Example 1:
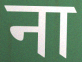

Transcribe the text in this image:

ना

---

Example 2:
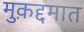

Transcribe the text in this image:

मुक़द्दमात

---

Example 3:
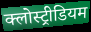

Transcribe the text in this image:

क्लोस्ट्रीडियम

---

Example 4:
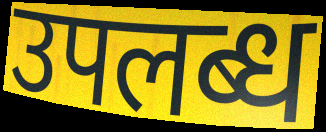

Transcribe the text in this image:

उपलब्ध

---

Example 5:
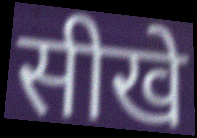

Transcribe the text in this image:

सीखे